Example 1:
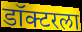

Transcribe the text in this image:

डॉक्टरला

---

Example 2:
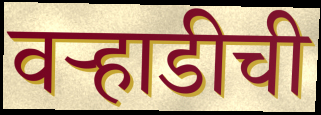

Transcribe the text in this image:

वऱ्हाडीची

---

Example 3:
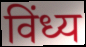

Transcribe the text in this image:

विंध्य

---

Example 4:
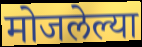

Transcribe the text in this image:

मोजलेल्या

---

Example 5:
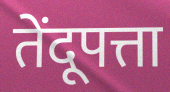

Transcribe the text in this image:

तेंदूपत्ता